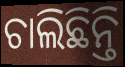
ଚାଲିଛିନ୍ତି